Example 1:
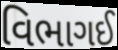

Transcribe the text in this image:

વિભાગઈ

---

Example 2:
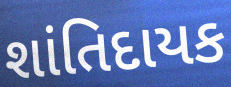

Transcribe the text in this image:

શાંતિદાયક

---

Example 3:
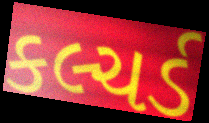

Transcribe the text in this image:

કલ્ચર્ડ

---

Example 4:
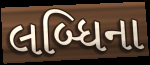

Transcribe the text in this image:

લબ્ધિના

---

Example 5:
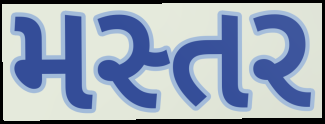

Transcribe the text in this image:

મસ્તર